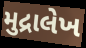
મુદ્રાલેખ